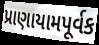
પ્રાણાયામપૂર્વક